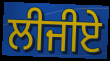
ਲੀਜੀਏ